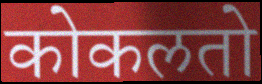
कोकलतो